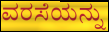
ವರಸೆಯನ್ನು